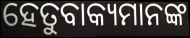
ହେତୁବାକ୍ୟମାନଙ୍କ